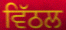
ਵਿੱਠਲ